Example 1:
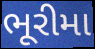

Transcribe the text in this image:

ભૂરીમા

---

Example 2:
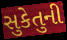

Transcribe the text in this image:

સુકેતુની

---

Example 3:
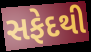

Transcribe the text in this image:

સફેદથી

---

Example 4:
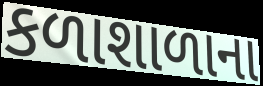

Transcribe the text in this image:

કળાશાળાના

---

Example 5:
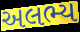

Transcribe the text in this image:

અલભ્ય